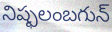
నిష్ఫలంబగున్